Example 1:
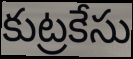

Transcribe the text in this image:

కుట్రకేసు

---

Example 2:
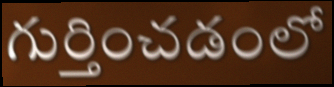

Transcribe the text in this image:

గుర్తించడంలో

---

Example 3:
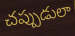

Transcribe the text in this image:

చప్పుడులా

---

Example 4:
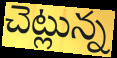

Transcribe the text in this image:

చెట్లున్న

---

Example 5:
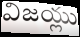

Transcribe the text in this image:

విజయ్లు